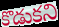
కొడుకని